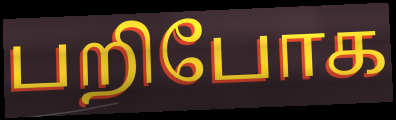
பறிபோக